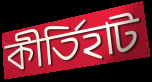
কীর্তিহাট